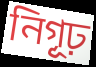
নিগূঢ়